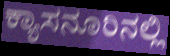
ಕ್ಯಾಸನೂರಿನಲ್ಲಿ